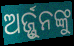
ଅର୍ଜ୍ଜୁନଙ୍କୁ